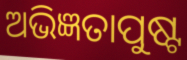
ଅଭିଜ୍ଞତାପୁଷ୍ଟ